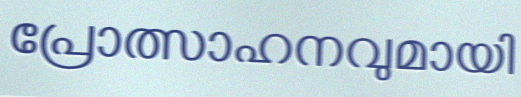
പ്രോത്സാഹനവുമായി